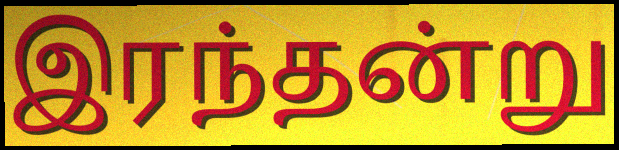
இரந்தன்று